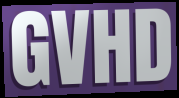
GVHD